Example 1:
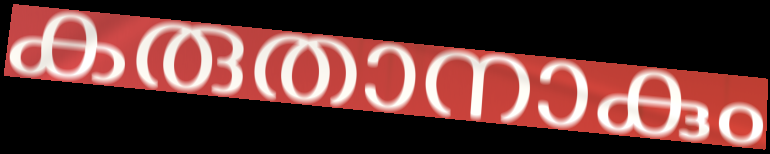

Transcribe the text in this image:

കരുതാനാകും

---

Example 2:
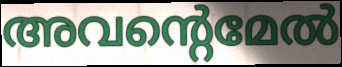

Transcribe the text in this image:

അവന്റെമേൽ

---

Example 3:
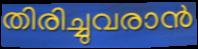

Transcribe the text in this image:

തിരിച്ചുവരാൻ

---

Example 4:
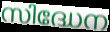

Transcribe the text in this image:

സിദ്ധേന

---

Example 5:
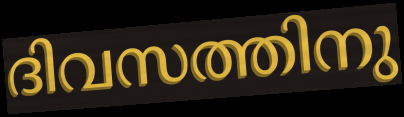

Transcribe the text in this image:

ദിവസത്തിനു